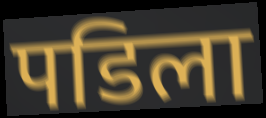
पडिला